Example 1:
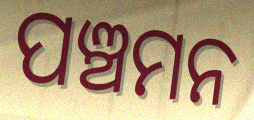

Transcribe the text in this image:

ପଞ୍ଚମନ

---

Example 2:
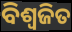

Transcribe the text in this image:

ବିଶ୍ଵଜିତ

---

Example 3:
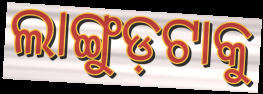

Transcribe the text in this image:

ଲାଙ୍ଗୁଡ଼ଟାକୁ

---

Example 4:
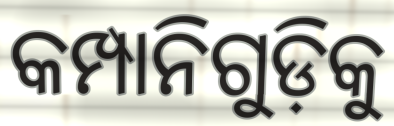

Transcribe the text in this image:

କମ୍ପାନିଗୁଡ଼ିକୁ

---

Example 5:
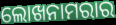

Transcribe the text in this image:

ଲୋଖନାମରାର